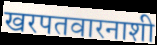
खरपतवारनाशी